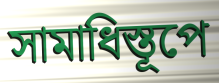
সামাধিস্তূপে